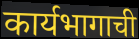
कार्यभागाची